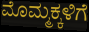
ಮೊಮ್ಮಕ್ಕಳಿಗೆ